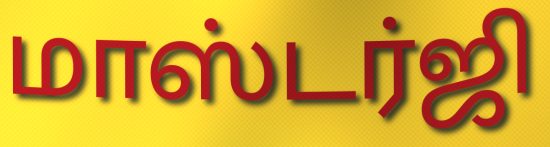
மாஸ்டர்ஜி